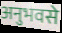
अनुभवसे